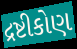
દ્રષ્ટીકોણ